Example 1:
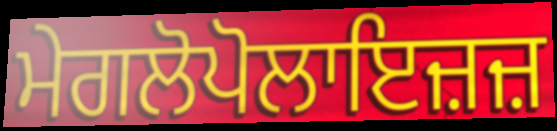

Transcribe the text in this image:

ਮੇਗਲੋਪੋਲਾਇਜ਼ਜ਼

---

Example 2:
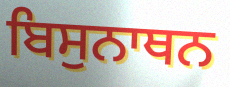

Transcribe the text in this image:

ਬਿਸੁਨਾਥਨ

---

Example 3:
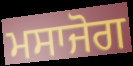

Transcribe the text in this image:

ਮਸਾਜੋਗ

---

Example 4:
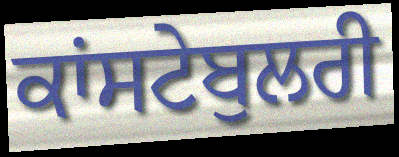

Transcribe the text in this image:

ਕਾਂਸਟੇਬੁਲਰੀ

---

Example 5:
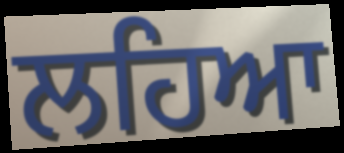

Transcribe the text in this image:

ਲਹਿਆ